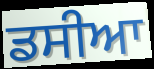
ਡਸੀਆ